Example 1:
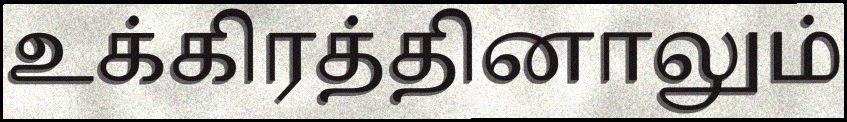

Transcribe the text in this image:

உக்கிரத்தினாலும்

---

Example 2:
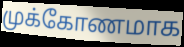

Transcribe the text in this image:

முக்கோணமாக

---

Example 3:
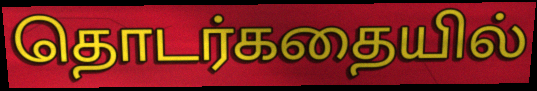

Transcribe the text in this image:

தொடர்கதையில்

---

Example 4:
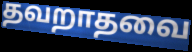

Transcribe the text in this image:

தவறாதவை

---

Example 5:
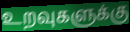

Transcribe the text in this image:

உறவுகளுக்கு